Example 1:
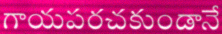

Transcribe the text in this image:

గాయపరచకుండానే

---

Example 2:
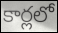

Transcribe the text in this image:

కార్లలో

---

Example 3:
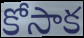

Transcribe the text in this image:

కోసాక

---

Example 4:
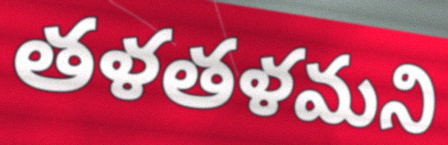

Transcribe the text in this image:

తళతళమని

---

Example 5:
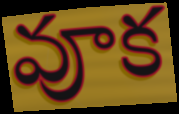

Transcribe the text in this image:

వూక